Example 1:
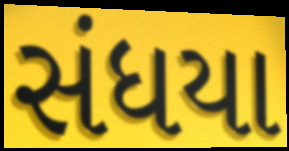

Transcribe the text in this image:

સંધયા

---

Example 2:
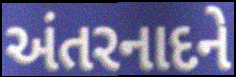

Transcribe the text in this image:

અંતરનાદને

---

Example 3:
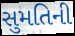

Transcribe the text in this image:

સુમતિની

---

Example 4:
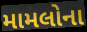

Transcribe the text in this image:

મામલોના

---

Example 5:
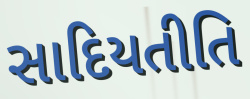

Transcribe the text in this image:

સાદિયતીતિ